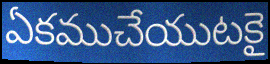
ఏకముచేయుటకై